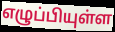
எழுப்பியுள்ள